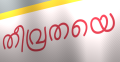
തീവ്രതയെ